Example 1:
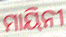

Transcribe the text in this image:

ମାୟିନୀ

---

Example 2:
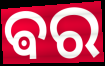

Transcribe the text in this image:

ଵର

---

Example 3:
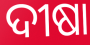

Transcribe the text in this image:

ଦୀଷା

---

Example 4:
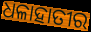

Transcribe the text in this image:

ଧଳାହାତୀର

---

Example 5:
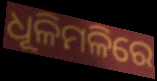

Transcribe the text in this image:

ଧୂଳିମଳିରେ